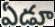
ఏడూ